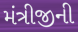
મંત્રીજીની